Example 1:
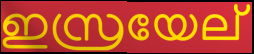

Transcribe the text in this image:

ഇസ്രയേല്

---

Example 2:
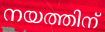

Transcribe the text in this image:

നയത്തിന്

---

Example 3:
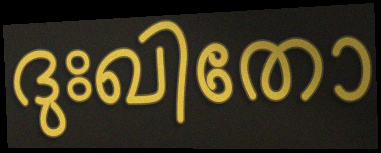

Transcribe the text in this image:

ദുഃഖിതോ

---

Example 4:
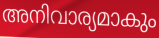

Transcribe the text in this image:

അനിവാര്യമാകും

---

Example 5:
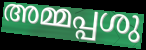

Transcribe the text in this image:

അമ്മപ്പശു